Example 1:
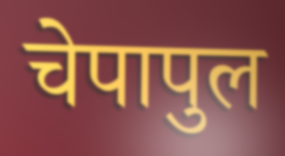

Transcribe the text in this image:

चेपापुल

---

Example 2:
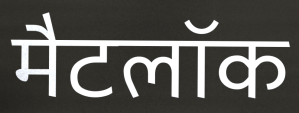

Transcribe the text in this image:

मैटलॉक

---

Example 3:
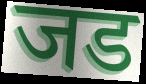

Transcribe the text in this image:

जड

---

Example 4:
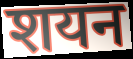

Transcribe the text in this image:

शयन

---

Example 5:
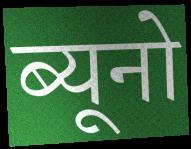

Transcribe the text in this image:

ब्यूनो